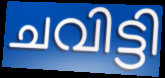
ചവിട്ടി